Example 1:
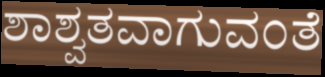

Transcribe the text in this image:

ಶಾಶ್ವತವಾಗುವಂತೆ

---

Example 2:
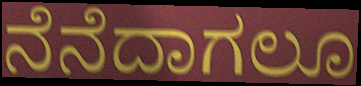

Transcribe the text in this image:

ನೆನೆದಾಗಲೂ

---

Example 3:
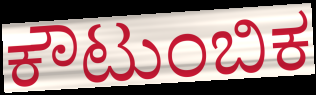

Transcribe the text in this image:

ಕೌಟುಂಬಿಕ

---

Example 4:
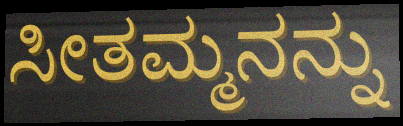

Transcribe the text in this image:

ಸೀತಮ್ಮನನ್ನು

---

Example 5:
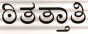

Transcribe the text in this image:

ಠಿತತ್ತಾತಿ